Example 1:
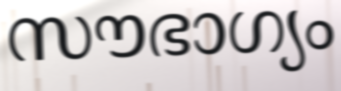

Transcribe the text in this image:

സൗഭാഗ്യം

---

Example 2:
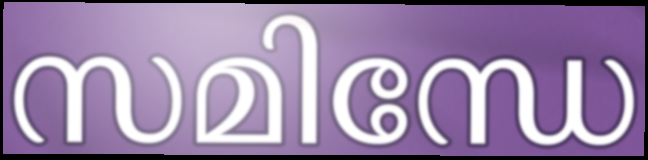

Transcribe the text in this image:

സമിന്ധേ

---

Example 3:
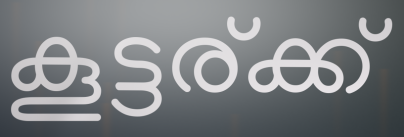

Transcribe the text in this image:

കൂട്ടര്ക്ക്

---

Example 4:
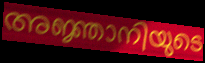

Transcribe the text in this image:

അജ്ഞാനിയുടെ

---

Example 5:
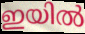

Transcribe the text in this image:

ഇയിൽ